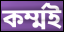
কর্ম্মই